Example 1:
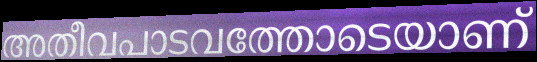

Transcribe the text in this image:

അതീവപാടവത്തോടെയാണ്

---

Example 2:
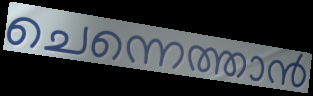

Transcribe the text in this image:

ചെന്നെത്താൻ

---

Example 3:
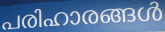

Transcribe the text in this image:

പരിഹാരങ്ങൾ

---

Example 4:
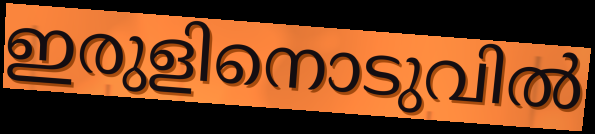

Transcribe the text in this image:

ഇരുളിനൊടുവിൽ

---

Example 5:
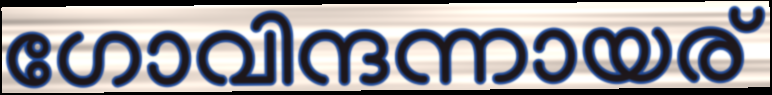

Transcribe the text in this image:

ഗോവിന്ദന്നായര്